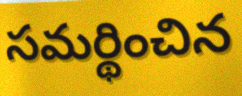
సమర్థించిన